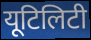
यूटिलिटी